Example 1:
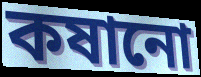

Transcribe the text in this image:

কষানো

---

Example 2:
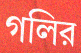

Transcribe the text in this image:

গলির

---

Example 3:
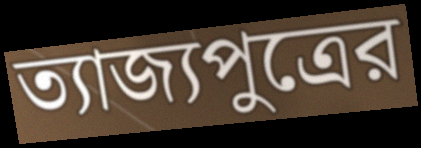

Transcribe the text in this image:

ত্যাজ্যপুত্রের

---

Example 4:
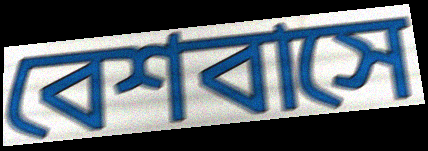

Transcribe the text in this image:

বেশবাসে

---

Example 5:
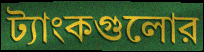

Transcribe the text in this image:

ট্যাংকগুলোর